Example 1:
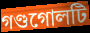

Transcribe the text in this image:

গণ্ডগোলটি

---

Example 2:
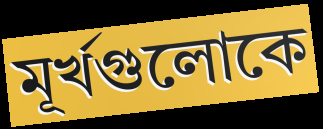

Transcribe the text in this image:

মূর্খগুলোকে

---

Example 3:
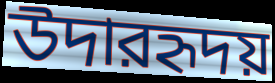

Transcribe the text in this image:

উদারহৃদয়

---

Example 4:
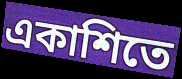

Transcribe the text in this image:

একাশিতে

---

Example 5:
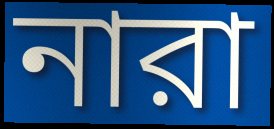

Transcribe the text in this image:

নারা